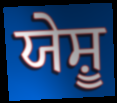
ਯੇਸ਼ੂ